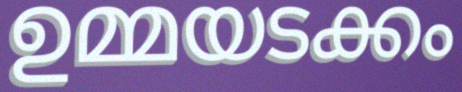
ഉമ്മയടക്കം